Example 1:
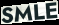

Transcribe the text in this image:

SMLE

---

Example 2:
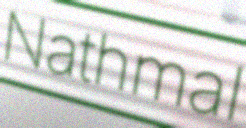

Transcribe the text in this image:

Nathmal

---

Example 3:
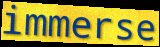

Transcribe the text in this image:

immerse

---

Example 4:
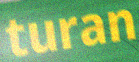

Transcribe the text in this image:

turan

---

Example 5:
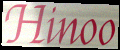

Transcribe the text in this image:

Hinoo